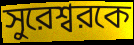
সুরেশ্বরকে